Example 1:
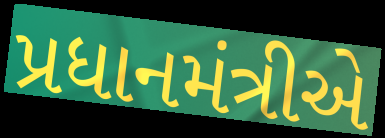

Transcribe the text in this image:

પ્રધાનમંત્રીએ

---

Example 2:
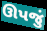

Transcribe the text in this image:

ઊપજું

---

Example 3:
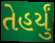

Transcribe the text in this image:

તેહર્યું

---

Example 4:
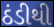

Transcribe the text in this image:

ઠંડીથી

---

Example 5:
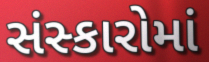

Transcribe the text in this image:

સંસ્કારોમાં